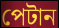
পেটান